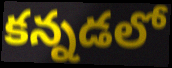
కన్నడలో